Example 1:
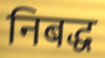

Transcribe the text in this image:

निबद्ध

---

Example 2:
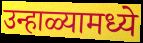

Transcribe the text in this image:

उन्हाळ्यामध्ये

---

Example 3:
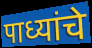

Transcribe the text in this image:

पाध्यांचे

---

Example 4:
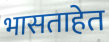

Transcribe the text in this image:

भासताहेत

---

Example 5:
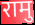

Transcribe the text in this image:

रामु